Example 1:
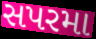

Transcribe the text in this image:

સપરમા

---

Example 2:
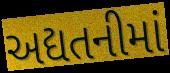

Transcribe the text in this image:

અદ્યતનીમાં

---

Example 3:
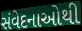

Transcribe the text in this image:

સંવેદનાઓથી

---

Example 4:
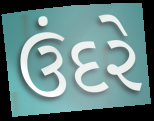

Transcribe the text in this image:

ઉંદરે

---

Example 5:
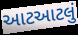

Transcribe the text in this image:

આટઆટલું